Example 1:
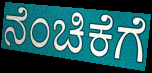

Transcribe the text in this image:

ನೆಂಚಿಕೆಗೆ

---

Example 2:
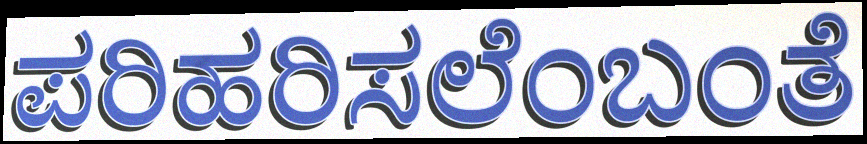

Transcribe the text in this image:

ಪರಿಹರಿಸಲೆಂಬಂತೆ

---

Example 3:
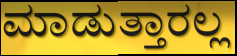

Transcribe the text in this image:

ಮಾಡುತ್ತಾರಲ್ಲ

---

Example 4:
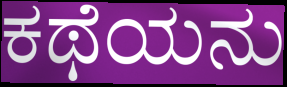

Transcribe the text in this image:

ಕಥೆಯನು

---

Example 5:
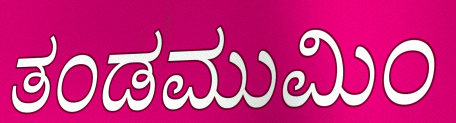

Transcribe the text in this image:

ತಂಡಮುಮಿಂ